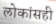
लोकांसही